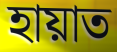
হায়াত